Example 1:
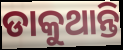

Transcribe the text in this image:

ଡାକୁଥାନ୍ତି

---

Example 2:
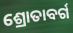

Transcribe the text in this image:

ଶ୍ରୋତାବର୍ଗ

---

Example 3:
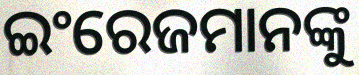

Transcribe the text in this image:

ଇଂରେଜମାନଙ୍କୁ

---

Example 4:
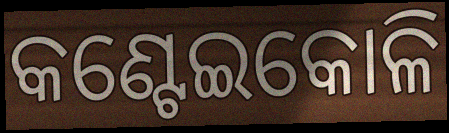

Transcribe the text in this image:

କଣ୍ଟେଇକୋଳି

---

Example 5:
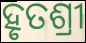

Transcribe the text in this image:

ହୃତଶ୍ରୀ